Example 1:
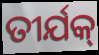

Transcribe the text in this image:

ତୀର୍ଯକ୍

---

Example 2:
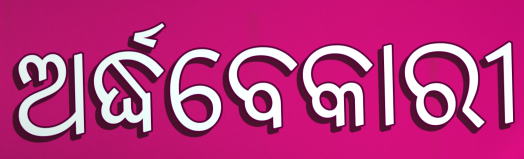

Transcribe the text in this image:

ଅର୍ଦ୍ଧବେକାରୀ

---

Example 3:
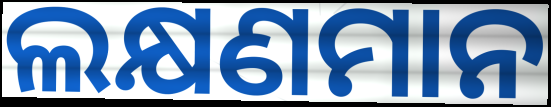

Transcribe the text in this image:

ଲକ୍ଷଣମାନ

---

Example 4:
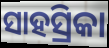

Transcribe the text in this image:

ସାହସ୍ରିକା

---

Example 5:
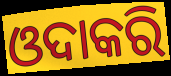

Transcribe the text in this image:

ଓଦାକରି